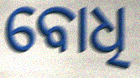
ବୋଧି